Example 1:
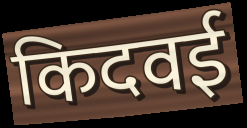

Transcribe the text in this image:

किदवई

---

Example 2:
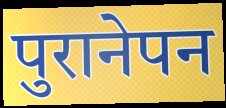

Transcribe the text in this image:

पुरानेपन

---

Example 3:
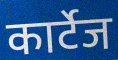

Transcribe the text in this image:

कार्टेज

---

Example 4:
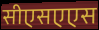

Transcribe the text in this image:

सीएसएएस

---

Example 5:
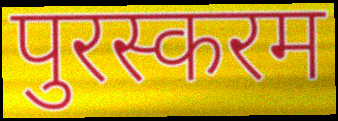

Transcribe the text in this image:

पुरस्करम